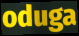
oduga